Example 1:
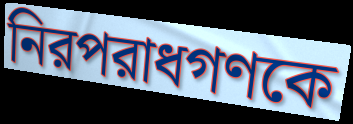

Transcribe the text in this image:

নিরপরাধগণকে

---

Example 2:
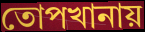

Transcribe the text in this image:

তোপখানায়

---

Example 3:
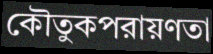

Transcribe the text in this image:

কৌতুকপরায়ণতা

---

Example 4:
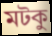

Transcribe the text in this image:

মটকু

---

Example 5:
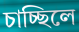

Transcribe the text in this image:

চাচ্ছিলে